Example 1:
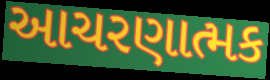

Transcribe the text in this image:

આચરણાત્મક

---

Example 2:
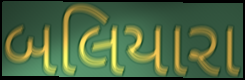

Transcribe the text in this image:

બલિયારા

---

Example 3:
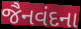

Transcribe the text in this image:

જૈનવંદના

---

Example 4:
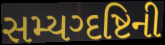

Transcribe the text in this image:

સમ્યગ્દષ્ટિની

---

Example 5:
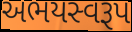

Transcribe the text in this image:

અભયસ્વરૂપ